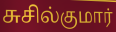
சுசில்குமார்